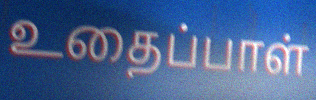
உதைப்பாள்